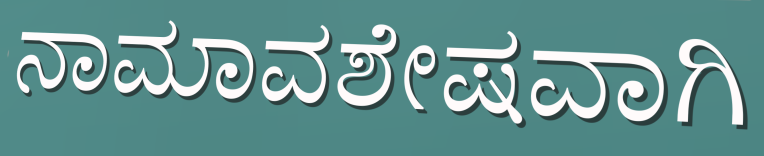
ನಾಮಾವಶೇಷವಾಗಿ